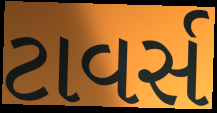
ટાવર્સ